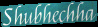
Shubhechha